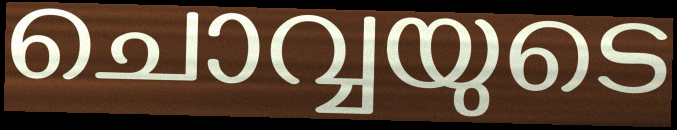
ചൊവ്വയുടെ